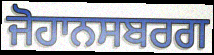
ਜੋਹਾਨਸਬਰਗ